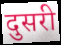
दुसरी